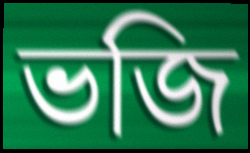
ভজি